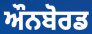
ਔਨਬੋਰਡ